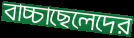
বাচ্চাছেলেদের